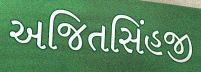
અજિતસિંહજી